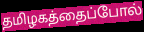
தமிழகத்தைப்போல்